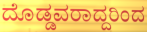
ದೊಡ್ಡವರಾದ್ದರಿಂದ